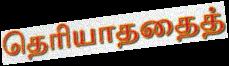
தெரியாததைத்